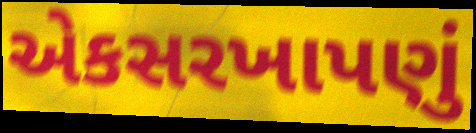
એકસરખાપણું